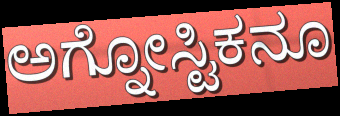
ಅಗ್ನೋಸ್ಟಿಕನೂ